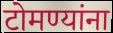
टोमण्यांना